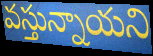
వస్తున్నాయని